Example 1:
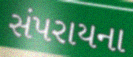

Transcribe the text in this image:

સંપરાયના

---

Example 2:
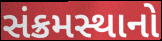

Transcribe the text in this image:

સંક્રમસ્થાનો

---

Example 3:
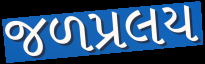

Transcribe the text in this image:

જળપ્રલય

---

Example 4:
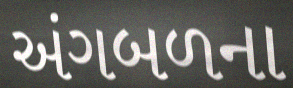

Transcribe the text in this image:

અંગબળના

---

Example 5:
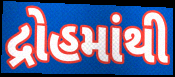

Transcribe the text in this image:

દ્રોહમાંથી